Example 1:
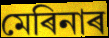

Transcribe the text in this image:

মেৰিনাৰ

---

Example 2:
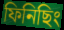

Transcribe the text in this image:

ফিনিছিং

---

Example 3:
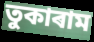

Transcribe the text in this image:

তুকাৰাম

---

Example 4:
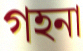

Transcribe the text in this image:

গহনা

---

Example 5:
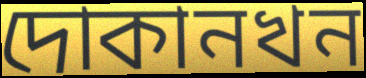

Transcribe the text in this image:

দোকানখন